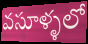
వసూళ్ళలో